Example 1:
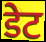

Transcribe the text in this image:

डेट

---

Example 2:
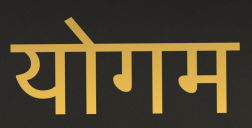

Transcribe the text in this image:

योगम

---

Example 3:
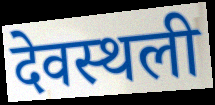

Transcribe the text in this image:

देवस्थली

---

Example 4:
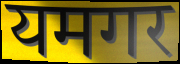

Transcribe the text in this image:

यमगर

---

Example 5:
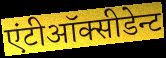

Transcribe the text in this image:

एंटीऑक्सीडेन्ट